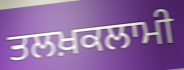
ਤਲਖ਼ਕਲਾਮੀ